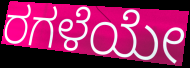
ರಗಳೆಯೇ